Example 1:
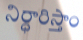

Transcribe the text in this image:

నిర్ధారిస్తాం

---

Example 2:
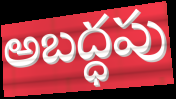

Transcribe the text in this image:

అబద్ధపు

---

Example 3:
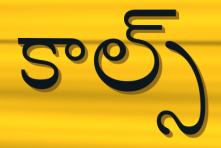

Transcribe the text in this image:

కాల్స్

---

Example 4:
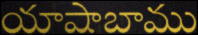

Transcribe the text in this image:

యాషాబాము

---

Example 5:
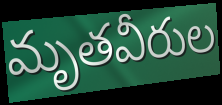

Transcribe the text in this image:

మృతవీరుల